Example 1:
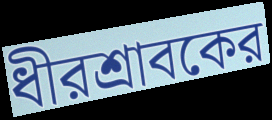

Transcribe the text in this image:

ধীরশ্রাবকের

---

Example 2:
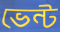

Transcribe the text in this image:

ভেন্ট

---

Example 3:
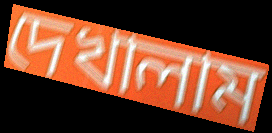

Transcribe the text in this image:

দেখালাম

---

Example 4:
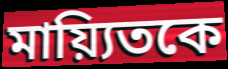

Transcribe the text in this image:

মায়্যিতকে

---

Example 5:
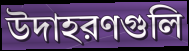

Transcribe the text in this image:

উদাহরণগুলি